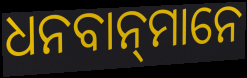
ଧନବାନ୍‍ମାନେ